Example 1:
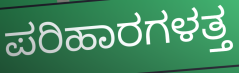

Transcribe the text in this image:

ಪರಿಹಾರಗಳತ್ತ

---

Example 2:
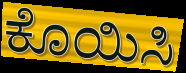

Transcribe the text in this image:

ಕೊಯಿಸಿ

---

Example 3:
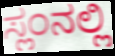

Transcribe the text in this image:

ಸ್ಲಂನಲ್ಲಿ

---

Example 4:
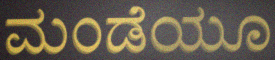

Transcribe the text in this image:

ಮಂಡೆಯೂ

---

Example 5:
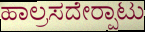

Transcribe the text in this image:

ಹಾಲ್ರಸದೇರ‍್ಪಾಟು